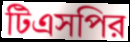
টিএসপির